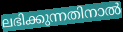
ലഭിക്കുന്നതിനാൽ